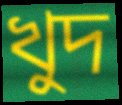
খুদ